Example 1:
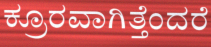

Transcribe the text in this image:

ಕ್ರೂರವಾಗಿತ್ತೆಂದರೆ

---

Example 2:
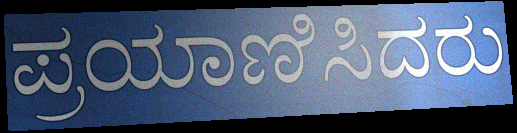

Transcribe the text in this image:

ಪ್ರಯಾಣಿಸಿದರು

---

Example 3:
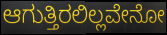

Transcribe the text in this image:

ಆಗುತ್ತಿರಲಿಲ್ಲವೇನೋ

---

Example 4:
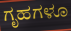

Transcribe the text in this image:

ಗೃಹಗಳೂ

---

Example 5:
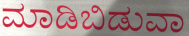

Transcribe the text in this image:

ಮಾಡಿಬಿಡುವಾ